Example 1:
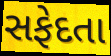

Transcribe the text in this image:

સફેદતા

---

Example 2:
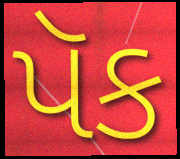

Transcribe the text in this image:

પૅક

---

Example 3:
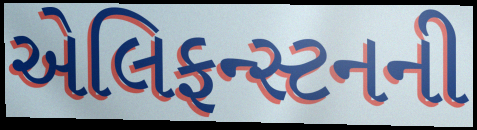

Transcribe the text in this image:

એલિફન્સ્ટનની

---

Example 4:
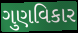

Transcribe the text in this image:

ગુણવિકાર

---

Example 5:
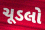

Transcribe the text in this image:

ચૂડલો